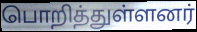
பொறித்துள்ளனர்